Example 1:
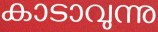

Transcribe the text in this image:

കാടാവുന്നു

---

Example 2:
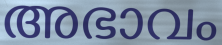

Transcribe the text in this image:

അഭാവം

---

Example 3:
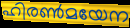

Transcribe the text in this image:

ഹിരൺമയേന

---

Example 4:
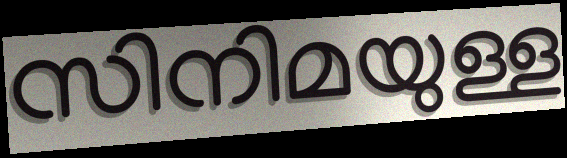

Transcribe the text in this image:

സിനിമയുള്ള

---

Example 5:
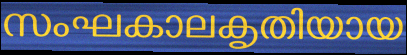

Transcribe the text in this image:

സംഘകാലകൃതിയായ